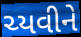
ચ્યવીને